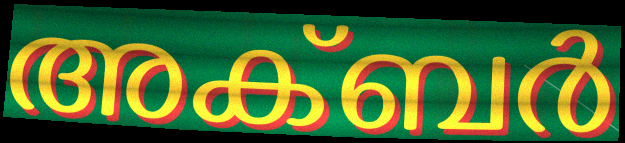
അക്ബർ